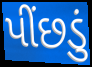
પીંછડું